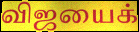
விஜயைக்